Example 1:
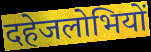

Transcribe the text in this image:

दहेजलोभियों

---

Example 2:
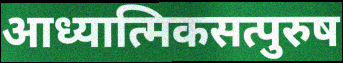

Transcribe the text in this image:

आध्यात्मिकसत्पुरुष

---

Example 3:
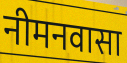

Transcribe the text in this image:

नीमनवासा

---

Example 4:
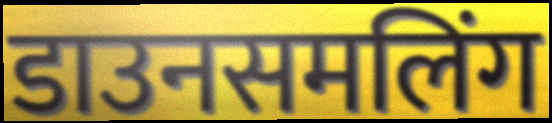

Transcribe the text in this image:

डाउनसमलिंग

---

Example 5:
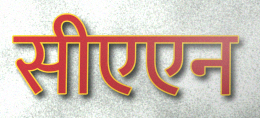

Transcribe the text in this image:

सीएएन